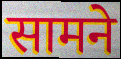
सामने